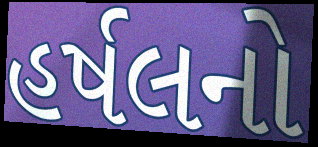
હર્ષલનો